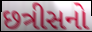
છત્રીસનો